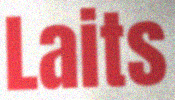
Laits